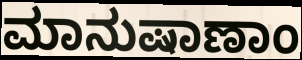
ಮಾನುಷಾಣಾಂ